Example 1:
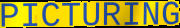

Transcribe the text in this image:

PICTURING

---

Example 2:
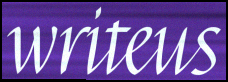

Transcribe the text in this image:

writeus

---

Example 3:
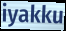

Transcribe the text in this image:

iyakku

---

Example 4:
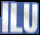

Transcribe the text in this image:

ILU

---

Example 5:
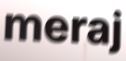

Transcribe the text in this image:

meraj